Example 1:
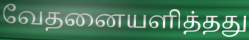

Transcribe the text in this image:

வேதனையளித்தது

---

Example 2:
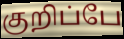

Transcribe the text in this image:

குறிப்பே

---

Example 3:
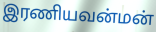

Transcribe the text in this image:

இரணியவன்மன்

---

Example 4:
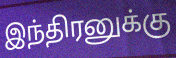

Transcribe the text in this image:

இந்திரனுக்கு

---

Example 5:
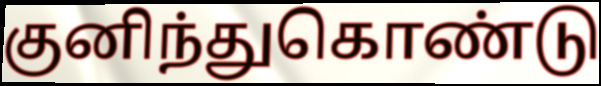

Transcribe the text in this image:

குனிந்துகொண்டு